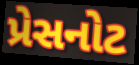
પ્રેસનોટ